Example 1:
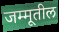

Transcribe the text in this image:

जम्मूतील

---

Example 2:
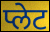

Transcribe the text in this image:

प्लेट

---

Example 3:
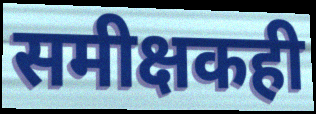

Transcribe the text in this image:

समीक्षकही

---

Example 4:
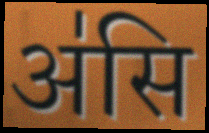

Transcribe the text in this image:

अ॑सि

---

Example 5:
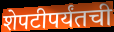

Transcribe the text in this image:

शेपटीपर्यंतची